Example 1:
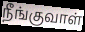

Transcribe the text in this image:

நீங்குவாள்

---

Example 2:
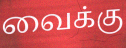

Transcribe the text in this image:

வைக்கு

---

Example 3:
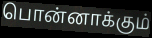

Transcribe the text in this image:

பொன்னாக்கும்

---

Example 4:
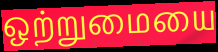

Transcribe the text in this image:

ஒற்றுமையை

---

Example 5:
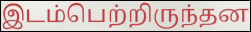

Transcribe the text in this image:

இடம்பெற்றிருந்தன